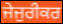
ਜੇਜੁਰੀਕਰ